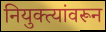
नियुक्त्यांवरून